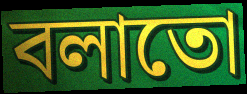
বলাতো